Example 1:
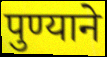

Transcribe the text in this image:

पुण्याने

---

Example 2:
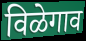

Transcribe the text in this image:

विळेगाव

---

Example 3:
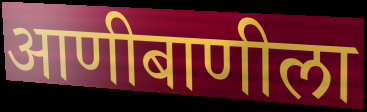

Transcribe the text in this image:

आणीबाणीला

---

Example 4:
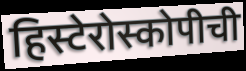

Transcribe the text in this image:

हिस्टेरोस्कोपीची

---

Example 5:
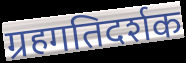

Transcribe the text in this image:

ग्रहगतिदर्शक